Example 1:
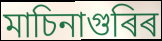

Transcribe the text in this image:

মাচিনাগুৰিৰ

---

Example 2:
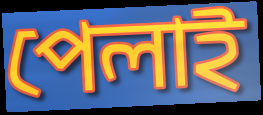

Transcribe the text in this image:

পেলাই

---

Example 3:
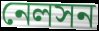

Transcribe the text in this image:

নেলসন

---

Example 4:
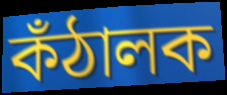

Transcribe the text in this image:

কঁঠালক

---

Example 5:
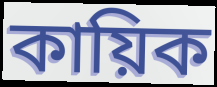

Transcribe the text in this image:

কায়িক